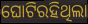
ଘୋଟିରହିଥିଲା